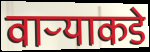
वाऱ्याकडे